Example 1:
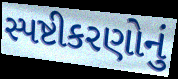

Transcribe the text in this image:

સ્પષ્ટીકરણોનું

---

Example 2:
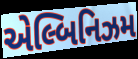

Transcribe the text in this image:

એલ્બિનિઝમ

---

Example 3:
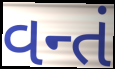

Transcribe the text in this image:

વન્તં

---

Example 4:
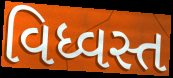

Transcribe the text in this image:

વિધ્વસ્ત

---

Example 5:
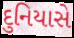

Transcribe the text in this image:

દુનિયાસે